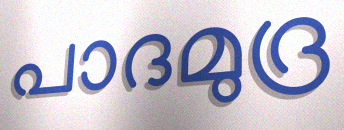
പാദമുദ്ര